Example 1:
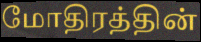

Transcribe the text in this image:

மோதிரத்தின்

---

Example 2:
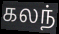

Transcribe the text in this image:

கலந்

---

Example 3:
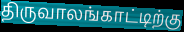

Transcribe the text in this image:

திருவாலங்காட்டிற்கு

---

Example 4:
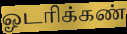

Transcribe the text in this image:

ஓடரிக்கண்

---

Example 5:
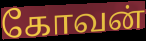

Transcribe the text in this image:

கோவன்